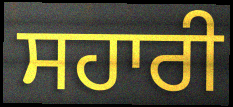
ਸਹਾਰੀ